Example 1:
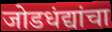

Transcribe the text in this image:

जोडधंद्यांचा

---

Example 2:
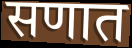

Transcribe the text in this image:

सणात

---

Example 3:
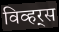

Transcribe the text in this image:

विव्हर्स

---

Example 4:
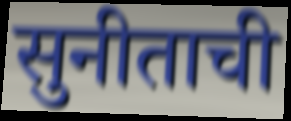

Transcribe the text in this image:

सुनीताची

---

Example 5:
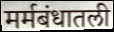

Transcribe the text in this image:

मर्मबंधातली